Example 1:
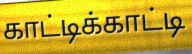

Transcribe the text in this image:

காட்டிக்காட்டி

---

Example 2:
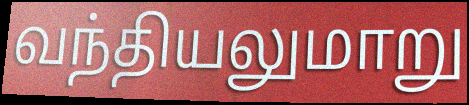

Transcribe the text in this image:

வந்தியலுமாறு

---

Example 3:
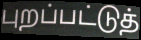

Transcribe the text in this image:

புறப்பட்டுத்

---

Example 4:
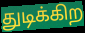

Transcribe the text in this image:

துடிக்கிற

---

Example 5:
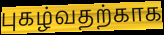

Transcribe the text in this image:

புகழ்வதற்காக